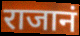
राजानं